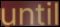
until